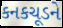
કનકચૂડને